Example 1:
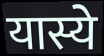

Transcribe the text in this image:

यास्ये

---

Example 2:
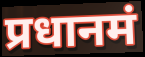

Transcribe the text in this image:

प्रधानमं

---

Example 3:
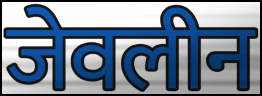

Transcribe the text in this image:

जेवलीन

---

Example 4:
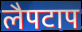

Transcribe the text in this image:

लैपटाप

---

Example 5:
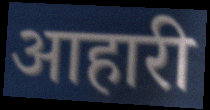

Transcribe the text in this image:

आहारी